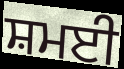
ਸ਼ਮਈ